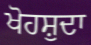
ਖੋਹਸ਼ੁਦਾ